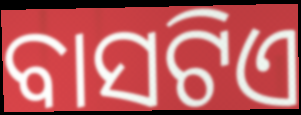
ବାସଟିଏ